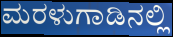
ಮರಳುಗಾಡಿನಲ್ಲಿ